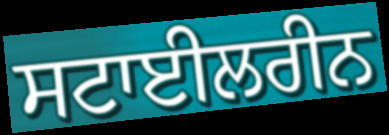
ਸਟਾਈਲਰੀਨ